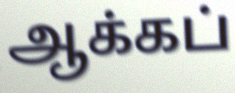
ஆக்கப்